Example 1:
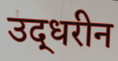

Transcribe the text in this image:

उद्धरीन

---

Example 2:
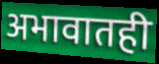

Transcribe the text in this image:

अभावातही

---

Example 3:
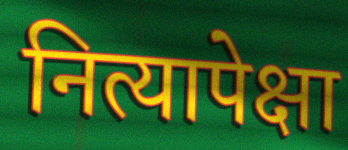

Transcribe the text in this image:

नित्यापेक्षा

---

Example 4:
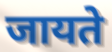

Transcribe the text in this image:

जायते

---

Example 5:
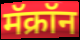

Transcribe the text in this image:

मॅक्रॉन